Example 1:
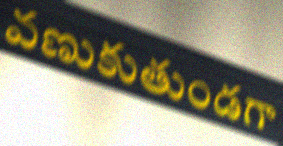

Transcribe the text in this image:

వణుకుతుండగా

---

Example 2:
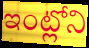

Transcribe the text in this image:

ఇంట్లోని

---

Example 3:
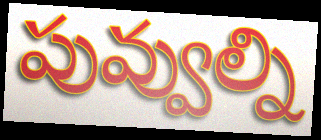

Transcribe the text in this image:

పువ్వుల్ని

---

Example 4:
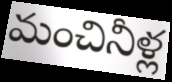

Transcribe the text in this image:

మంచినీళ్ల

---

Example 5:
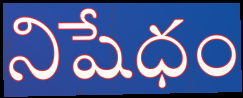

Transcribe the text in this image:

నిషేధం